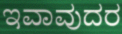
ಇವಾವುದರ